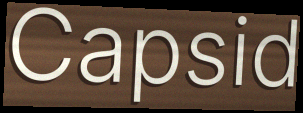
Capsid